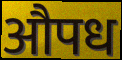
औपध